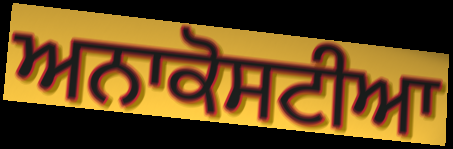
ਅਨਾਕੋਸਟੀਆ